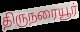
திருநரையூர்